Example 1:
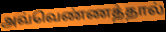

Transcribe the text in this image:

அவ்வெண்ணத்தால்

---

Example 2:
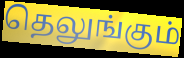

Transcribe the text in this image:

தெலுங்கும்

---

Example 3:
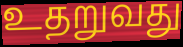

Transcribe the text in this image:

உதறுவது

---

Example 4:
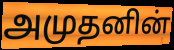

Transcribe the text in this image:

அமுதனின்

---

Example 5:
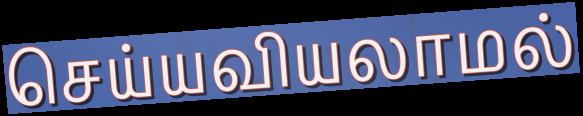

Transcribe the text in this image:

செய்யவியலாமல்